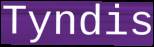
Tyndis